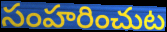
సంహరించుట